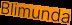
Blimunda